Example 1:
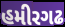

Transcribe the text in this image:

હમીરગઢ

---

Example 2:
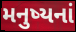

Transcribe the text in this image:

મનુષ્યનાં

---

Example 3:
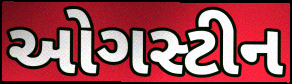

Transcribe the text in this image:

ઓગસ્ટીન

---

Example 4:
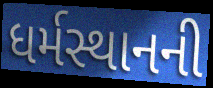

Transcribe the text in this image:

ધર્મસ્થાનની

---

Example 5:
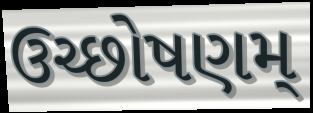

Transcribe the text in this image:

ઉચ્છોષણમ્